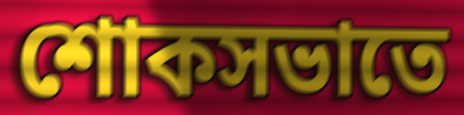
শোকসভাতে